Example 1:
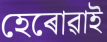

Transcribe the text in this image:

হেৰোৱাই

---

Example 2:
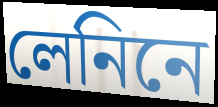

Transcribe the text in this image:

লেনিনে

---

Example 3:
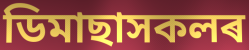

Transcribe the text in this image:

ডিমাছাসকলৰ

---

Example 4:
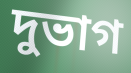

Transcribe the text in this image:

দুভাগ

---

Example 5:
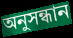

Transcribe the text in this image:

অনুসন্ধান